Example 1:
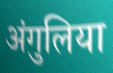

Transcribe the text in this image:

अंगुलिया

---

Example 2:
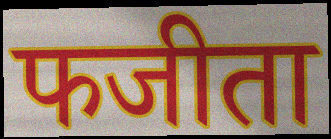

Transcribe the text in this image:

फजीता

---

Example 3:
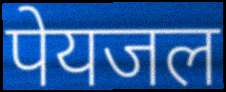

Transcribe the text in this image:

पेयजल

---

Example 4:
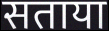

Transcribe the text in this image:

सताया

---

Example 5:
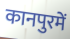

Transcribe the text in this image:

कानपुरमें